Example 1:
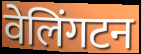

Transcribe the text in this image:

वेलिंगटन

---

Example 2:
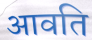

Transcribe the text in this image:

आवति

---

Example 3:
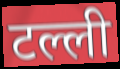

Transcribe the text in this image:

टल्ली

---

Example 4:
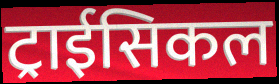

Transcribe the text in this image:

ट्राईसिकल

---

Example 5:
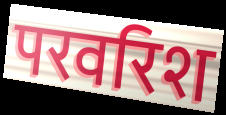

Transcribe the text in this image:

परवरिश